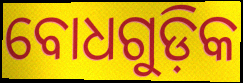
ବୋଧଗୁଡ଼ିକ